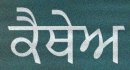
ਕੈਥੇਅ